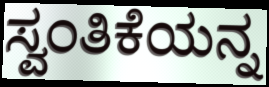
ಸ್ವಂತಿಕೆಯನ್ನ